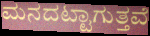
ಮನದಟ್ಟಾಗುತ್ತವೆ